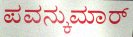
ಪವನ್ಕುಮಾರ್